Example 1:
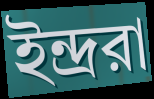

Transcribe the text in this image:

ইন্দ্ররা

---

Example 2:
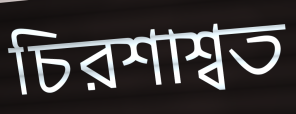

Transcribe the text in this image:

চিরশাশ্বত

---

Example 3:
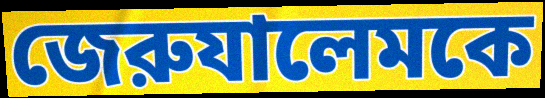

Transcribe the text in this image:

জেরুযালেমকে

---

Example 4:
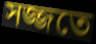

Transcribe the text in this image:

সজ্জতে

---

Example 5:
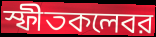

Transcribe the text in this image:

স্ফীতকলেবর